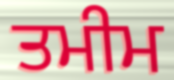
ਤਮੀਮ